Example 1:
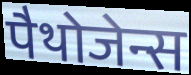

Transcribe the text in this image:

पैथोजेन्स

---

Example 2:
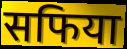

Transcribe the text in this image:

सफिया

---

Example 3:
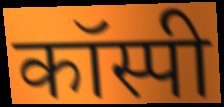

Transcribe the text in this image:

कॉस्पी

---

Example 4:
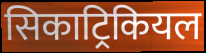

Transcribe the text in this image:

सिकाट्रिकियल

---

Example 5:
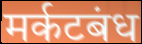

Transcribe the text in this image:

मर्कटबंध